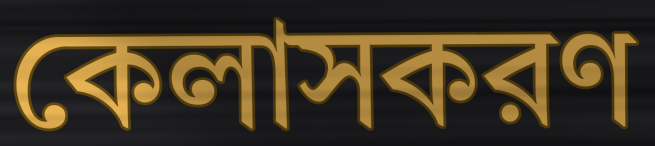
কেলাসকরণ